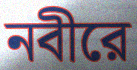
নবীরে